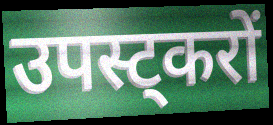
उपस्ट्करों